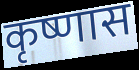
कृष्णास